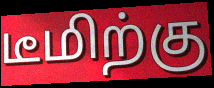
டீமிற்கு